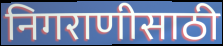
निगराणीसाठी